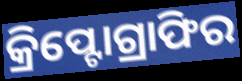
କ୍ରିପ୍ଟୋଗ୍ରାଫିର